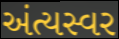
અંત્યસ્વર